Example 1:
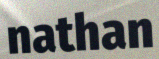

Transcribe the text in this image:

nathan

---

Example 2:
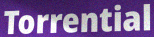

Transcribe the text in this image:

Torrential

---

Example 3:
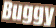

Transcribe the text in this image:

Buggy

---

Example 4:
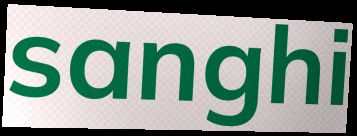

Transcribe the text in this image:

sanghi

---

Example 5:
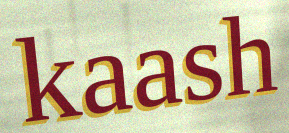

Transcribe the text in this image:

kaash